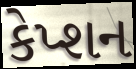
કેપ્શન